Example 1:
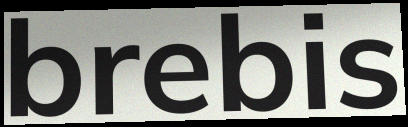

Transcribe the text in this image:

brebis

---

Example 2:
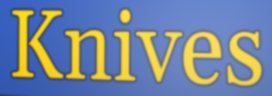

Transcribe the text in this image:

Knives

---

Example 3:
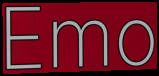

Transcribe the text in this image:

Emo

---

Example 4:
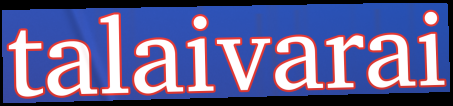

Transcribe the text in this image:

talaivarai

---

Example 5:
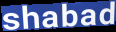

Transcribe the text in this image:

shabad